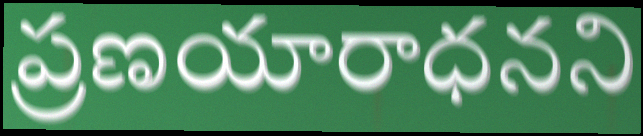
ప్రణయారాధనని